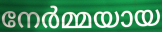
നേർമ്മയായ